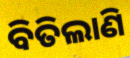
ବିତିଲାଣି